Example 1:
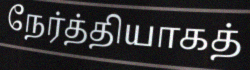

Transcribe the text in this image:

நேர்த்தியாகத்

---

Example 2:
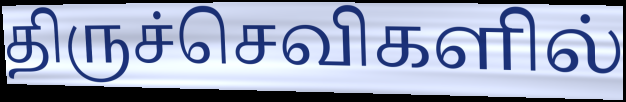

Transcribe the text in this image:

திருச்செவிகளில்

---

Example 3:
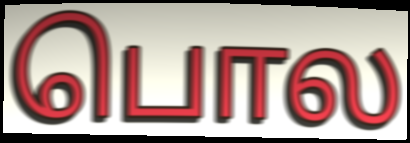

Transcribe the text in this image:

பொல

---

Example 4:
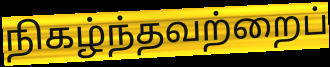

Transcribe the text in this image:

நிகழ்ந்தவற்றைப்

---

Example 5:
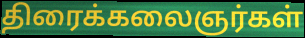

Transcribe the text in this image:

திரைக்கலைஞர்கள்